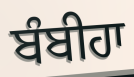
ਬੰਬੀਹਾ